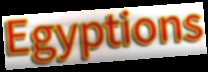
Egyptions